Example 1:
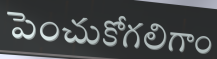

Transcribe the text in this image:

పెంచుకోగలిగాం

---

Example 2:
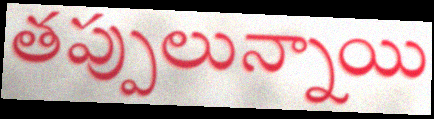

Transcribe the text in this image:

తప్పులున్నాయి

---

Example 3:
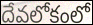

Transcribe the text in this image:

దేవలోకంలో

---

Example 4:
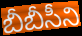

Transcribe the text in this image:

బీబీసీని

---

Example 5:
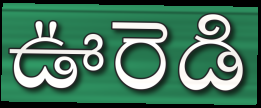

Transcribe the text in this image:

ఊరెడి